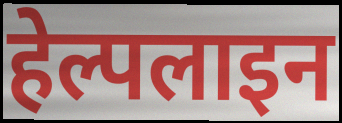
हेल्पलाइन